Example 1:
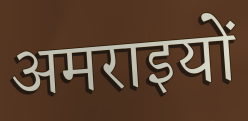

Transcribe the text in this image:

अमराइयों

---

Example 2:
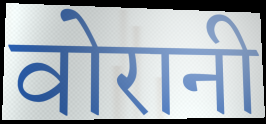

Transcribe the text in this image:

वोरानी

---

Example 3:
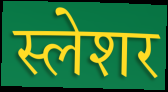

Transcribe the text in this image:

स्लेशर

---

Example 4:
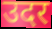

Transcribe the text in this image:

उदर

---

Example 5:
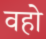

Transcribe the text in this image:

वहो